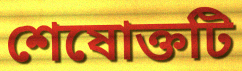
শেষোক্তটি